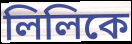
লিলিকে